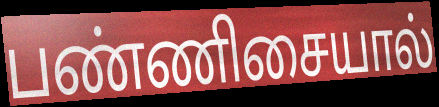
பண்ணிசையால்